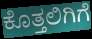
ಕೊತ್ತಲಿಗಿಗೆ